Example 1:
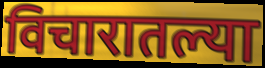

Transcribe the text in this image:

विचारातल्या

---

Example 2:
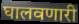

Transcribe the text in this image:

घालवणारी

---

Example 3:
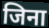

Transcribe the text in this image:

जिना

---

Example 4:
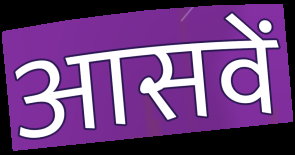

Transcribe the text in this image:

आसवें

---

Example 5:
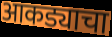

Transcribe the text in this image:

आकड्याचा